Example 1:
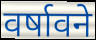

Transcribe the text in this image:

वर्षावने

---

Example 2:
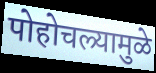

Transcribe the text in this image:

पोहोचल्यामुळे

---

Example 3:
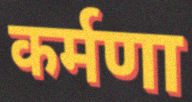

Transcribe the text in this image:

कर्मणा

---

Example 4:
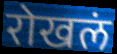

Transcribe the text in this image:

रोखलं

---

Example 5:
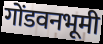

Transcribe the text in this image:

गोंडवनभूमी